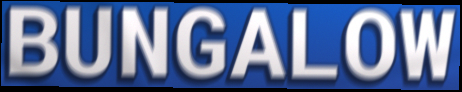
BUNGALOW